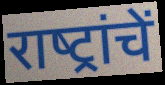
राष्ट्रांचें